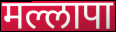
मल्लापा